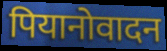
पियानोवादन